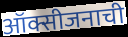
ऑक्सीजनाची